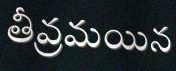
తీవ్రమయిన